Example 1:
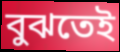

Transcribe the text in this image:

বুঝতেই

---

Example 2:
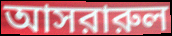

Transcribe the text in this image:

আসরারুল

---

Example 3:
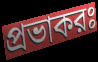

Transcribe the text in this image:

প্রভাকরঃ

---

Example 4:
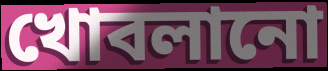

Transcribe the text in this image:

খোবলানো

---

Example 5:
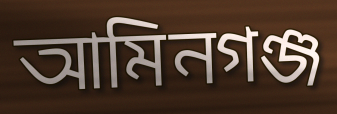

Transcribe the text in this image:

আমিনগঞ্জ